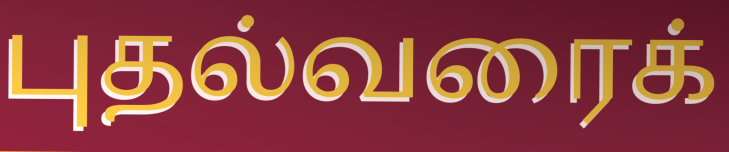
புதல்வரைக்